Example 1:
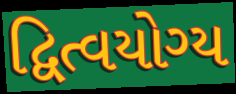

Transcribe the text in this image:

દ્વિત્વયોગ્ય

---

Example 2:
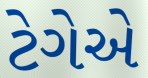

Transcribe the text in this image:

ટેગેએ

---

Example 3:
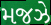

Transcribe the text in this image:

મજઝે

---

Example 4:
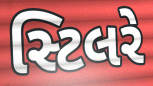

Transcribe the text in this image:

સ્ટિલરે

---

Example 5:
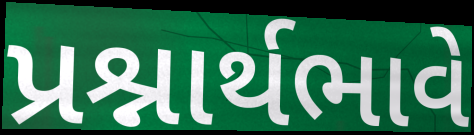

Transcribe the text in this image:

પ્રશ્નાર્થભાવે